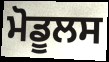
ਮੋਡੂਲਸ